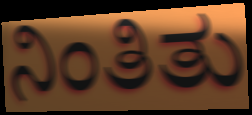
ನಿಂತಿತು